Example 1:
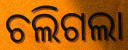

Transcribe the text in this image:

ଚଲିଗଲା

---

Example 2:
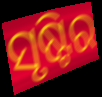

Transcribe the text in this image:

ସୃଷ୍ଟିର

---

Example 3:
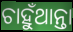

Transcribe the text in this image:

ଚାହୁଁଥାନ୍ତା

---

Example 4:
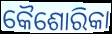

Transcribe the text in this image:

କୈଶୋରିକା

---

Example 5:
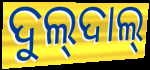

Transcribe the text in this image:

ଦୁଲ୍‍ଦାଲ୍